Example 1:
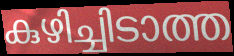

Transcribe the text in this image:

കുഴിച്ചിടാത്ത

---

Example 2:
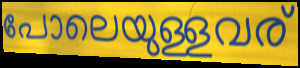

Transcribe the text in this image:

പോലെയുള്ളവര്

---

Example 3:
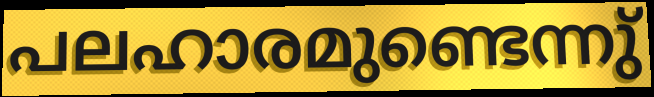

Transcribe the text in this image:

പലഹാരമുണ്ടെന്നു്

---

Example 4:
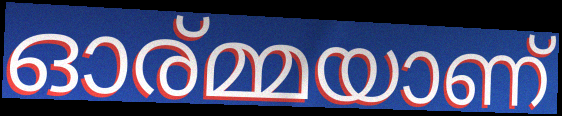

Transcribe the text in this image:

ഓര്മ്മയാണ്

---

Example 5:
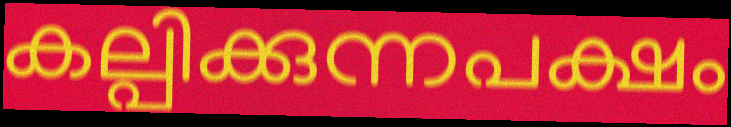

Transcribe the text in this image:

കല്പിക്കുന്നപക്ഷം